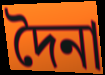
দৈনা